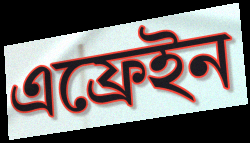
এফ্রেইন